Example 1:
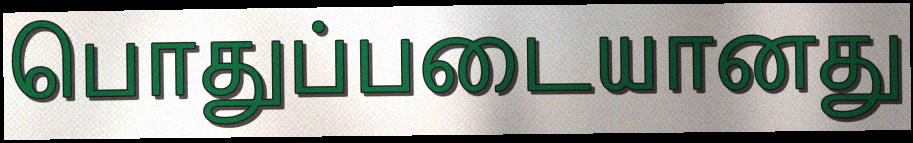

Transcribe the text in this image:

பொதுப்படையானது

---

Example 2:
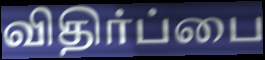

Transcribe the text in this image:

விதிர்ப்பை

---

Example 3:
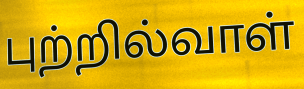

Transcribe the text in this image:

புற்றில்வாள்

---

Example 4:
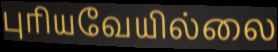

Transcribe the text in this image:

புரியவேயில்லை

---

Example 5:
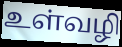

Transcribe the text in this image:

உள்வழி